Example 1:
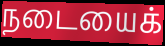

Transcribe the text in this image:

நடையைக்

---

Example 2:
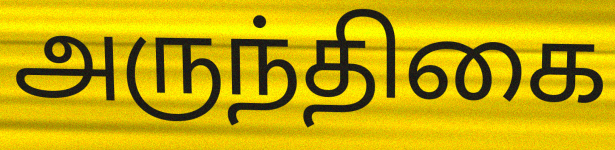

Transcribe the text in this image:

அருந்திகை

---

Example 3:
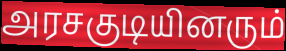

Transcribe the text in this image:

அரசகுடியினரும்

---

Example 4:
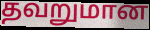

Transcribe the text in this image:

தவறுமான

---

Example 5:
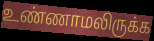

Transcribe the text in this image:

உண்ணாமலிருக்க